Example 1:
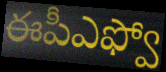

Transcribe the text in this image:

ఈపీఎఫ్వో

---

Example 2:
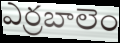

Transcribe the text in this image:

ఎర్రబాలెం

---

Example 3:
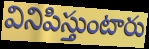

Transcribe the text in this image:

వినిపిస్తుంటారు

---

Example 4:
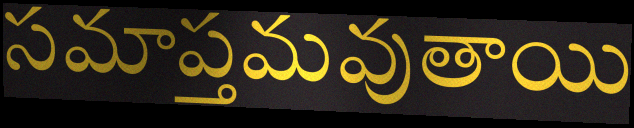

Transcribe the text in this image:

సమాప్తమవుతాయి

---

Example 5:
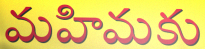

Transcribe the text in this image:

మహిమకు